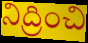
నిద్రించి